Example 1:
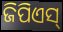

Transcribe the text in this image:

ଜିପିଏସ୍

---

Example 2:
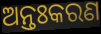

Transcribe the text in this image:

ଅନ୍ତଃକରଣ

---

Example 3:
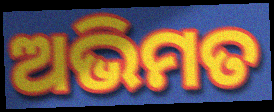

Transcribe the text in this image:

ଅଭିମତ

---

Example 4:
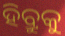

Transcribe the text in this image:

ହିବ୍ରୁକୁ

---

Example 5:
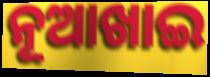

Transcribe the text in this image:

ନୂଆଖାଇ